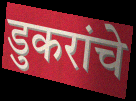
डुकरांचे